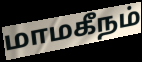
மாமகீநம்